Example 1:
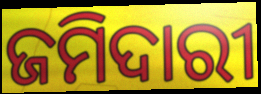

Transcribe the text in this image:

ଜମିଦାରୀ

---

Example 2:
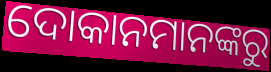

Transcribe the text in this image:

ଦୋକାନମାନଙ୍କରୁ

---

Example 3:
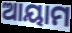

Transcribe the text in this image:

ଆୟାମ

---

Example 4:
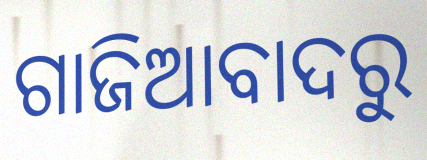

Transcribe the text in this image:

ଗାଜିଆବାଦରୁ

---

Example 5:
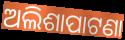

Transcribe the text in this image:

ଅଲିଶାପାଟଣା